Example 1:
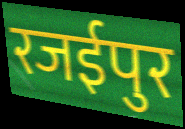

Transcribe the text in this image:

रजईपुर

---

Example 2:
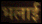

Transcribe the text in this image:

भलाई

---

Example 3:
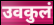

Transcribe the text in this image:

उवकुलं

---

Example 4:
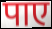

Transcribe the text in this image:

पाए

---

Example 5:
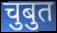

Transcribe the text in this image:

चुबुत